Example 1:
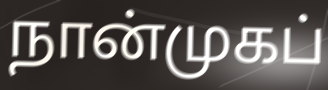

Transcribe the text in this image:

நான்முகப்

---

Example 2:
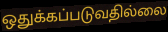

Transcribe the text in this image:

ஒதுக்கப்படுவதில்லை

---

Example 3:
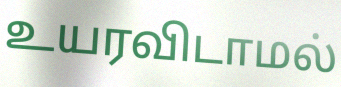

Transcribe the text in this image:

உயரவிடாமல்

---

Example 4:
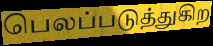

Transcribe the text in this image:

பெலப்படுத்துகிற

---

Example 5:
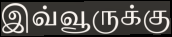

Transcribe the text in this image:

இவ்வூருக்கு